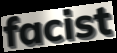
facist